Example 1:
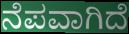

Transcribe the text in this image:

ನೆಪವಾಗಿದೆ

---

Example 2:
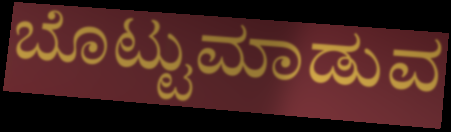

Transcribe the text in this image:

ಬೊಟ್ಟುಮಾಡುವ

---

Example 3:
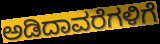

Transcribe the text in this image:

ಅಡಿದಾವರೆಗಳಿಗೆ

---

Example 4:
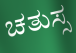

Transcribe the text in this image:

ಚತುಸ್ಸ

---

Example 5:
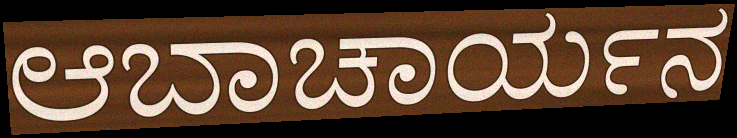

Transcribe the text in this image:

ಆಬಾಚಾರ್ಯನ